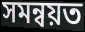
সমন্বয়ত